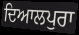
ਦਿਆਲਪੁਰਾ